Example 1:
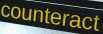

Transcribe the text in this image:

counteract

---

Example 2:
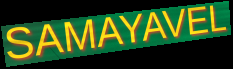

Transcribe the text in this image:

SAMAYAVEL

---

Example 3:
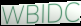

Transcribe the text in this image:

WBIDC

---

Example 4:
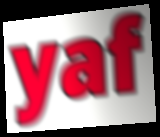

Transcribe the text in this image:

yaf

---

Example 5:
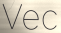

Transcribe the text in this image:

Vec